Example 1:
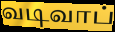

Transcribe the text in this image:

வடிவாப்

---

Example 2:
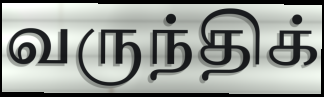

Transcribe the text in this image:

வருந்திக்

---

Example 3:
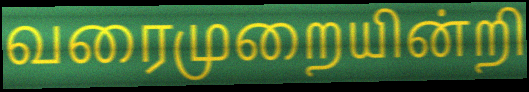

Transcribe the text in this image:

வரைமுறையின்றி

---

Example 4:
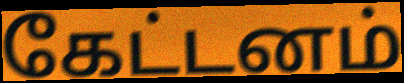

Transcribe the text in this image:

கேட்டனம்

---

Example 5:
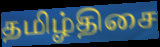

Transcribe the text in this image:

தமிழ்திசை